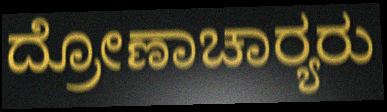
ದ್ರೋಣಾಚಾರ‍್ಯರು